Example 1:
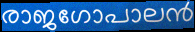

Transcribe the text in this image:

രാജഗോപാലൻ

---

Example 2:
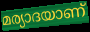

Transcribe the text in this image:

മര്യാദയാണ്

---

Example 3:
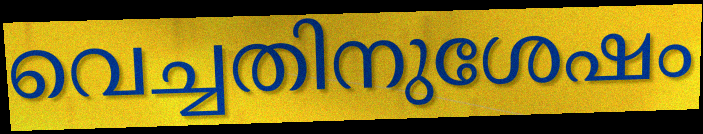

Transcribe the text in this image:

വെച്ചതിനുശേഷം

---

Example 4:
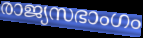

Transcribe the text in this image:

രാജ്യസഭാംഗം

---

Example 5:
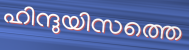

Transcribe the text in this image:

ഹിന്ദുയിസത്തെ